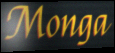
Monga